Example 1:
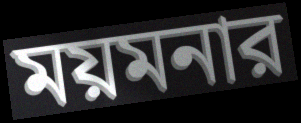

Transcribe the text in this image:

ময়মনার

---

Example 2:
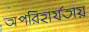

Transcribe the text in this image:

অপরিহার্যতায়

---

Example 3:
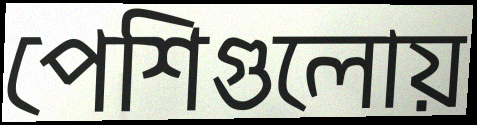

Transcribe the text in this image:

পেশিগুলোয়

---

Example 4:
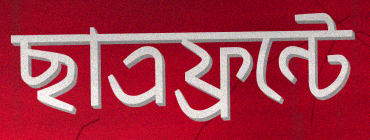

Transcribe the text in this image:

ছাত্রফ্রন্টে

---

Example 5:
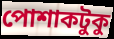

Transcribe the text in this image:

পোশাকটুকু